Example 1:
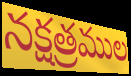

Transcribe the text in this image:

నక్షత్రముల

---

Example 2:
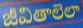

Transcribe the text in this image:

జీవితాలెలా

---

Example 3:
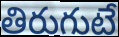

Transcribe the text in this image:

తిరుగుటే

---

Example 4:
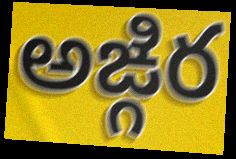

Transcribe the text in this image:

అఙ్గిర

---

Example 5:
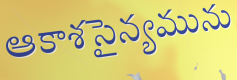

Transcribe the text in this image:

ఆకాశసైన్యమును